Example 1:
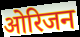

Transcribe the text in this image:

ओरिजन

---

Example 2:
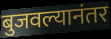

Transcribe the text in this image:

बुजवल्यानंतर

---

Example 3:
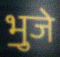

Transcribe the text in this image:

भु॒जे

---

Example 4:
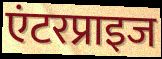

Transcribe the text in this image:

एंटरप्राइज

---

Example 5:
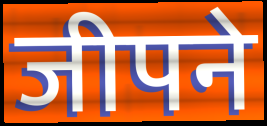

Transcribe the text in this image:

जीपने